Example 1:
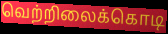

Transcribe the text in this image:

வெற்றிலைக்கொடி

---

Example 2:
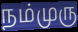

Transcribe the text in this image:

நம்முரு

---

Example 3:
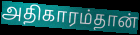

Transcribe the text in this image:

அதிகாரம்தான்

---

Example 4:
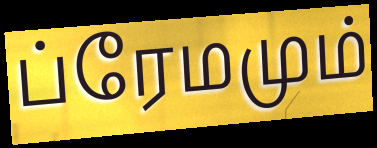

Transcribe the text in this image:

ப்ரேமமும்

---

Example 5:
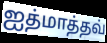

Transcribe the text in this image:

ஐத்மாத்தவ்